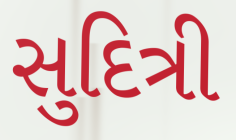
સુદિત્રી